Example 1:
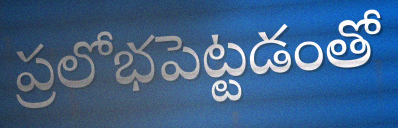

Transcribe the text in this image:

ప్రలోభపెట్టడంతో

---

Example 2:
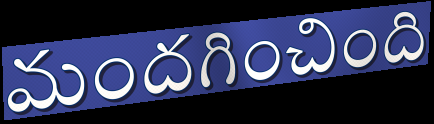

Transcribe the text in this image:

మందగించింది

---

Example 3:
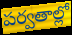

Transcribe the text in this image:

పర్వతాల్లో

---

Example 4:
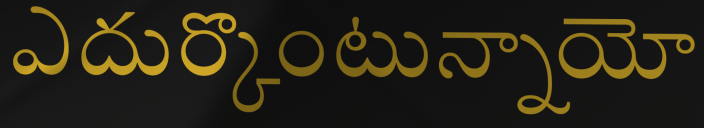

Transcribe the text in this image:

ఎదుర్కొంటున్నాయో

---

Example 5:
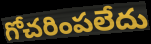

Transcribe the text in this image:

గోచరింపలేదు